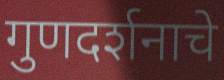
गुणदर्शनाचे